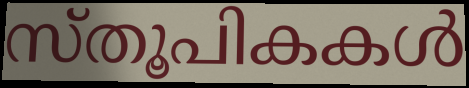
സ്തൂപികകൾ